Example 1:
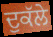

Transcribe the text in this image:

ਦੁਕੱਲੇ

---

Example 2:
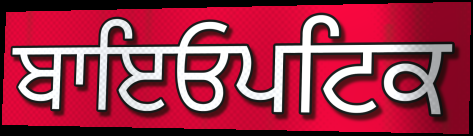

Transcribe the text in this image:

ਬਾਇਓਪਟਿਕ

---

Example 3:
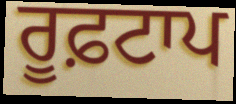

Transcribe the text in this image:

ਰੂਫ਼ਟਾਪ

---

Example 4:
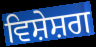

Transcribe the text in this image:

ਵਿਸ਼ੇਸ਼ਗ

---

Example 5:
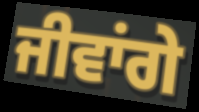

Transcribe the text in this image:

ਜੀਵਾਂਗੇ